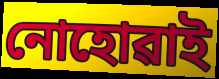
নোহোৱাই